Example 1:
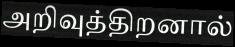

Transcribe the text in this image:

அறிவுத்திறனால்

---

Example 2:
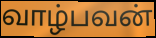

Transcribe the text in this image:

வாழ்பவன்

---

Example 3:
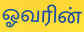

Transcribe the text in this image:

ஓவரின்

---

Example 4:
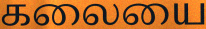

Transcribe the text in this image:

கலையை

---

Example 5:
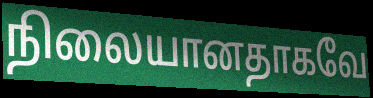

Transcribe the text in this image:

நிலையானதாகவே